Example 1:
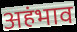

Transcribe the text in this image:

अहंभाव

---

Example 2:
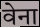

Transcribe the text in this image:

वेना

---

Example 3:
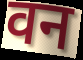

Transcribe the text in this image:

वन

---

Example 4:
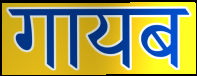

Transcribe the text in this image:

गायब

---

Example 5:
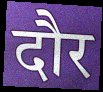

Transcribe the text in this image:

दौर